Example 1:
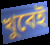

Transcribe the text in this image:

খুবেই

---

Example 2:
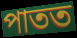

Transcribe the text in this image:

পাতত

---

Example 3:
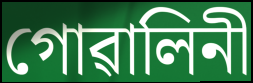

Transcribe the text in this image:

গোৱালিনী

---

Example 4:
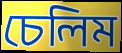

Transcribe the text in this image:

চেলিম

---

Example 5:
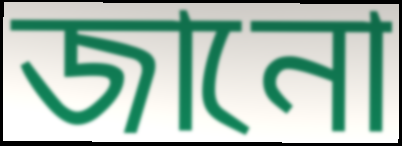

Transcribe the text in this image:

জানো